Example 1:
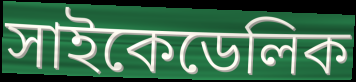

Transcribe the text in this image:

সাইকেডেলিক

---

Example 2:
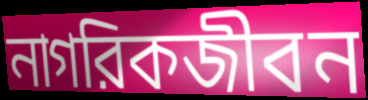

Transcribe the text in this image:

নাগরিকজীবন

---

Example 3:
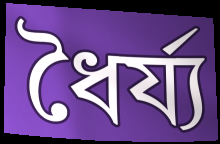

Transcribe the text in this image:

ধৈর্য্য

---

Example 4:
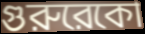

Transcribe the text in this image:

গুরুরেকো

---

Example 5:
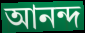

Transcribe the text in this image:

আনন্দ